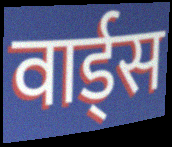
वार्ड्स